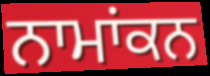
ਨਾਮਾਂਕਨ